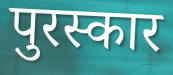
पुरस्कार